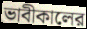
ভাবীকালের